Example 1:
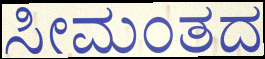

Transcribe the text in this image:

ಸೀಮಂತದ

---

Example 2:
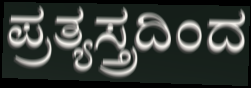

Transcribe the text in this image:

ಪ್ರತ್ಯಸ್ತ್ರದಿಂದ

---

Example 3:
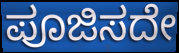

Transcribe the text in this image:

ಪೂಜಿಸದೇ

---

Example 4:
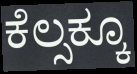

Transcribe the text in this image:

ಕೆಲ್ಸಕ್ಕೂ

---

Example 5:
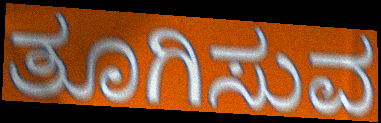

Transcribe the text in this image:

ತೂಗಿಸುವ